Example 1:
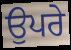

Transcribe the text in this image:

ਉਪਰੇ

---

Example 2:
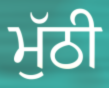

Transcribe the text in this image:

ਮੁੱਠੀ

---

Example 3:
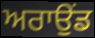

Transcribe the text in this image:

ਅਰਾਉਂਡ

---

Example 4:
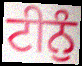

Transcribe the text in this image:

ਟੀਨੁੰ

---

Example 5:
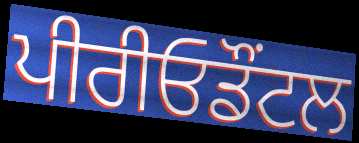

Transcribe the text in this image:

ਪੀਰੀਓਡੌਂਟਲ